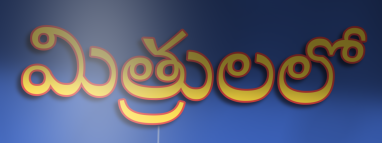
మిత్రులలో